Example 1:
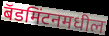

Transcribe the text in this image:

बॅडमिंटनमधील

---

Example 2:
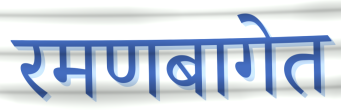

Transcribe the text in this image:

रमणबागेत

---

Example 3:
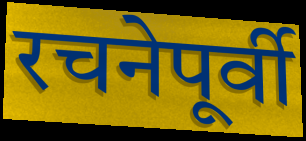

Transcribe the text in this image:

रचनेपूर्वी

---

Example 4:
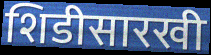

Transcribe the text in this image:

शिडीसारखी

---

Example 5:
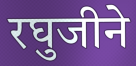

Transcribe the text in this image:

रघुजीने